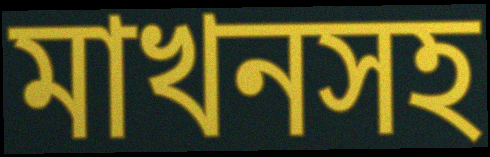
মাখনসহ